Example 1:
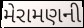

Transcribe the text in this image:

મેરામણની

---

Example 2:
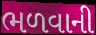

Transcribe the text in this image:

ભળવાની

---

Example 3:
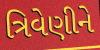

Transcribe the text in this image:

ત્રિવેણીને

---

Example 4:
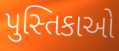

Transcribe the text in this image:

પુસ્તિકાઓ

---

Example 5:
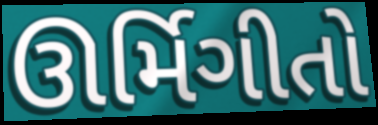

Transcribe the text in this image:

ઊર્મિગીતો